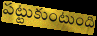
పట్టుకుంటుంది